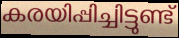
കരയിപ്പിച്ചിട്ടുണ്ട്